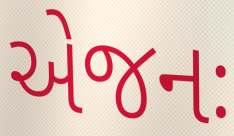
એજનઃ